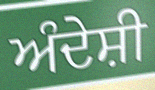
ਅੰਦੇਸ਼ੀ